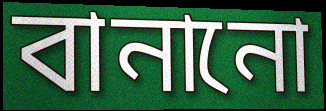
বানানো